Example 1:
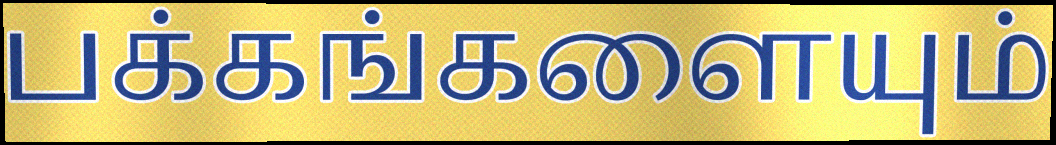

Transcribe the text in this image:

பக்கங்களையும்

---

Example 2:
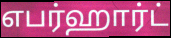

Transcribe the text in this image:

எபர்ஹார்ட்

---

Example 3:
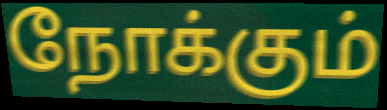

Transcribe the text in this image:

நோக்கும்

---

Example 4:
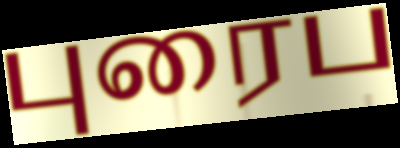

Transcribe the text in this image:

புரைப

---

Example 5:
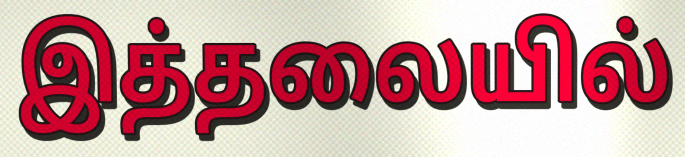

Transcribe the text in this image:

இத்தலையில்